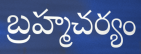
బ్రహ్మచర్యం